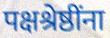
पक्षश्रेष्ठींना